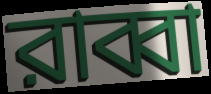
রাব্বা